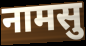
नामसु